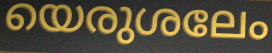
യെരുശലേം